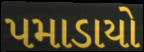
પમાડાયો